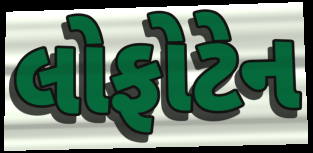
લોફોટેન